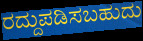
ರದ್ದುಪಡಿಸಬಹುದು